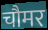
चौमर